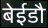
बेईडौ